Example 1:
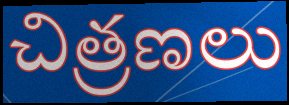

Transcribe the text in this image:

చిత్రణలు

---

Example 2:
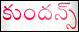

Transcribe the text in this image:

కుందన్స్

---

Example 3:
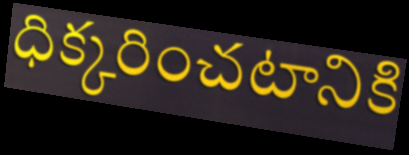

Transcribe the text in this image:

ధిక్కరించటానికి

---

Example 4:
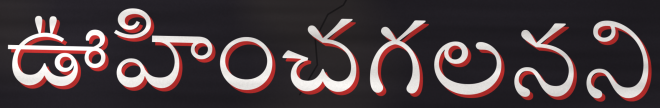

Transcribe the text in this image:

ఊహించగలనని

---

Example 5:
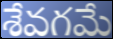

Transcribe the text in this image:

శేవగమే